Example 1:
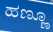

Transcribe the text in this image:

ಹಣ್ಣೂ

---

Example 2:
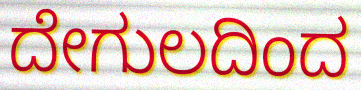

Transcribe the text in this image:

ದೇಗುಲದಿಂದ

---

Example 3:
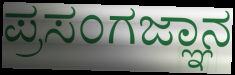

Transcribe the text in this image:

ಪ್ರಸಂಗಜ್ಞಾನ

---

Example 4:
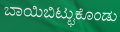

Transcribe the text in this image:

ಬಾಯಿಬಿಟ್ಟುಕೊಂಡು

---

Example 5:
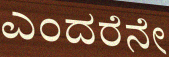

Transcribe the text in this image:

ಎಂದರೆನೇ